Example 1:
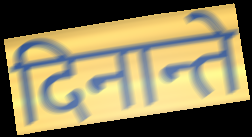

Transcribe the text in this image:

दिनान्ते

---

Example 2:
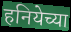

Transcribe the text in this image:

हनियेच्या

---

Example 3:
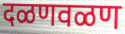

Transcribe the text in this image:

दळणवळण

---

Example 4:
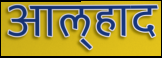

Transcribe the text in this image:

आल्हाद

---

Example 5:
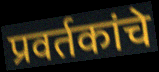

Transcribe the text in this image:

प्रवर्तकांचे